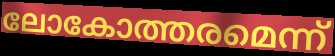
ലോകോത്തരമെന്ന്